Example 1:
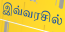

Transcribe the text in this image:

இவ்வரசில்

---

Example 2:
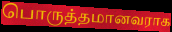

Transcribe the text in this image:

பொருத்தமானவராக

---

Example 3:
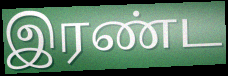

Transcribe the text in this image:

இரண்ட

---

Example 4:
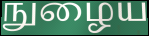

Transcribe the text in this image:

நுழைய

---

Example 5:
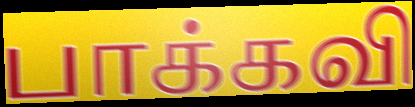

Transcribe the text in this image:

பாக்கவி